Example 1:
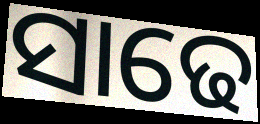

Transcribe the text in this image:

ସାଢେ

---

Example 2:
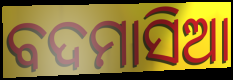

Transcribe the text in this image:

ବଦମାସିଆ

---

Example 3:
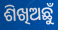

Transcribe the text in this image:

ଶିଖିଅଛୁଁ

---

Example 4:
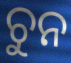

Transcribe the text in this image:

ଚୁନ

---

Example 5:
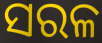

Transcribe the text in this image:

ସରଳ